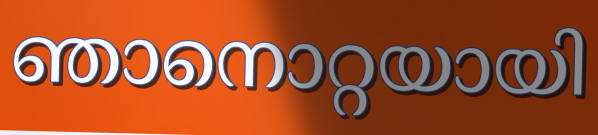
ഞാനൊറ്റയായി